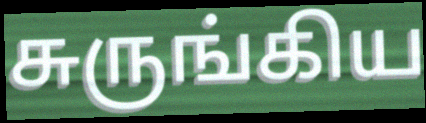
சுருங்கிய